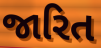
જારિત